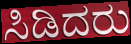
ಸಿಡಿದರು